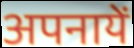
अपनायें